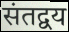
संतद्वय